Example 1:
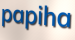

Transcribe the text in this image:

papiha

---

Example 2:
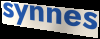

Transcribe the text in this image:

synnes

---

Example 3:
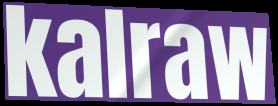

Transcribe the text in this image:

kalraw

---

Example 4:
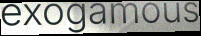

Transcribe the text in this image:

exogamous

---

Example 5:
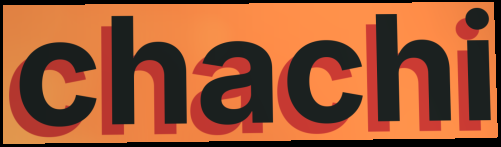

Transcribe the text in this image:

chachi